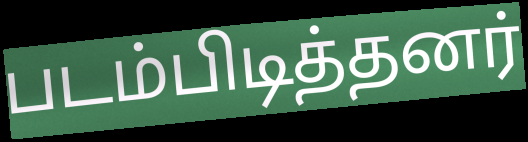
படம்பிடித்தனர்